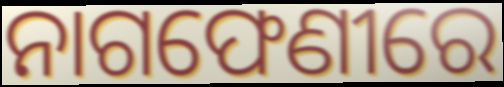
ନାଗଫେଣୀରେ